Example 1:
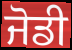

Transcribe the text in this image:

ਜੋਡੀ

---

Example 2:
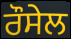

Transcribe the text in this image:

ਰੌਸੇਲ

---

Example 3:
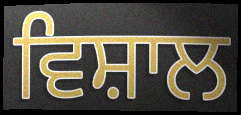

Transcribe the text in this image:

ਵਿਸ਼ਾਲ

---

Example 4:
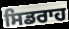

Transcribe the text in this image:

ਸਿਡਰਾਹ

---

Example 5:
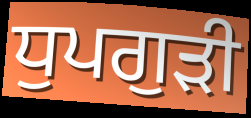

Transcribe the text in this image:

ਧੁਪਗੁੜੀ